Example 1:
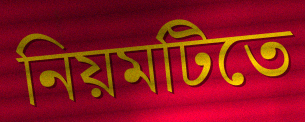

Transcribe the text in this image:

নিয়মটিতে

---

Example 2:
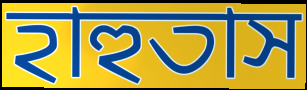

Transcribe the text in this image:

হাহুতাস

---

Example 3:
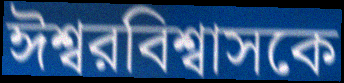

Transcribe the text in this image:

ঈশ্বরবিশ্বাসকে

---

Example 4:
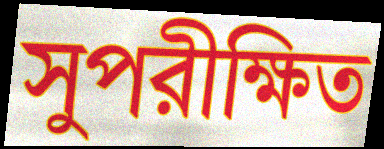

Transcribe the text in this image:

সুপরীক্ষিত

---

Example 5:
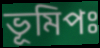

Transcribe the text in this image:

ভূমিপঃ